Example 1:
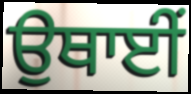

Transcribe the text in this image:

ਉਥਾਈਂ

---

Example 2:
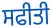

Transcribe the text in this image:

ਸਫੀਤੀ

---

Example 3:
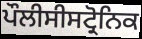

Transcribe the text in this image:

ਪੌਲੀਸੀਸਟ੍ਰੋਨਿਕ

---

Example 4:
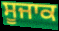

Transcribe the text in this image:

ਸੂਜਾਕ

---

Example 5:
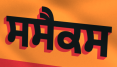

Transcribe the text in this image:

ਸਸੈਕਸ